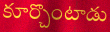
కూర్చొంటాడు